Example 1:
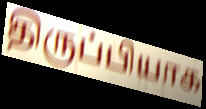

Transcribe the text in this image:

திருப்பியாக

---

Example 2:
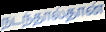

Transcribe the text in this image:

நடந்தால்தான்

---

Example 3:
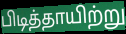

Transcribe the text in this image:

பிடித்தாயிற்று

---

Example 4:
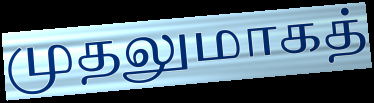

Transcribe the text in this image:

முதலுமாகத்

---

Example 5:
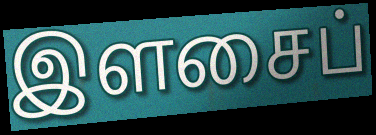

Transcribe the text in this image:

இளசைப்